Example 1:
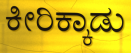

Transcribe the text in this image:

ಕೀರಿಕ್ಕಾಡು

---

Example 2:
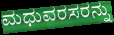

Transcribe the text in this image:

ಮಧುವರಸರನ್ನು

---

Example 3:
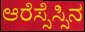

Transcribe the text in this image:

ಆರೆಸ್ಸೆಸ್ಸಿನ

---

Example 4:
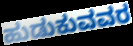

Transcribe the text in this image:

ಹುಡುಕುವವರ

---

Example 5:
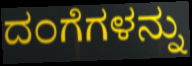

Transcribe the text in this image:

ದಂಗೆಗಳನ್ನು